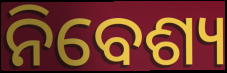
ନିବେଶ୍ୟ